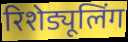
रिशेड्यूलिंग